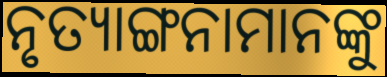
ନୃତ୍ୟାଙ୍ଗନାମାନଙ୍କୁ